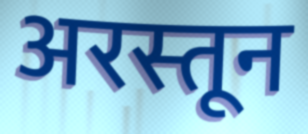
अरस्तून